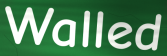
Walled